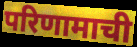
परिणामाची